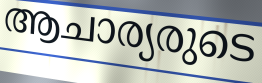
ആചാര്യരുടെ